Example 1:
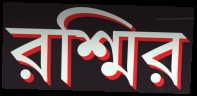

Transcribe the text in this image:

রশ্মির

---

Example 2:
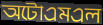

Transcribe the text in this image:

অটোএমএল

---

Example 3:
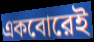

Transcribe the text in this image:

একবোরেই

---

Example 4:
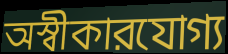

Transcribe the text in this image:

অস্বীকারযোগ্য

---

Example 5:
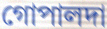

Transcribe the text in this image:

গোপালদা